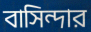
বাসিন্দার